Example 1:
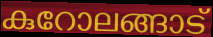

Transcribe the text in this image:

കുറോലങ്ങാട്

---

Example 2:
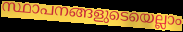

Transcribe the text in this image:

സ്ഥാപനങ്ങളുടെയെല്ലാം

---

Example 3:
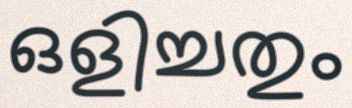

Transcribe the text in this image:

ഒളിച്ചതും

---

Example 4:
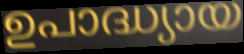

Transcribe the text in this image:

ഉപാദ്ധ്യായ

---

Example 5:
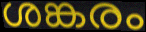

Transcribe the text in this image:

ശങ്കരം